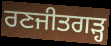
ਰਣਜੀਤਗੜ੍ਹ